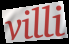
villi